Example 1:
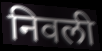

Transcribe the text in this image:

निवली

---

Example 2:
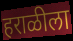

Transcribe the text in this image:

हराळीला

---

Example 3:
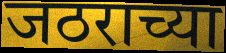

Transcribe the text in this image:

जठराच्या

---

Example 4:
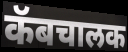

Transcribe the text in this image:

कॅबचालक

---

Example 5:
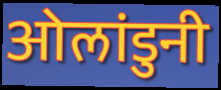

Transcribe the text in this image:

ओलांडुनी